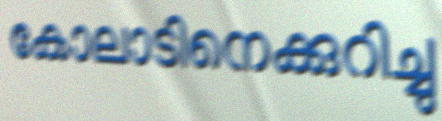
കോലാടിനെക്കുറിച്ചു